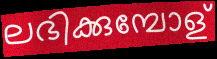
ലഭിക്കുമ്പോള്